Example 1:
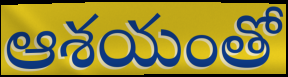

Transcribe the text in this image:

ఆశయంతో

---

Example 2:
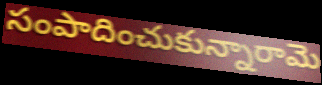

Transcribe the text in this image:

సంపాదించుకున్నారామె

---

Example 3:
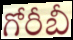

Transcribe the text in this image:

గోరీబీ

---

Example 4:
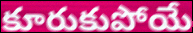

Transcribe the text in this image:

కూరుకుపోయే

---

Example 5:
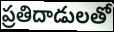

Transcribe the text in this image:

ప్రతిదాడులతో